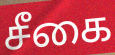
சீகை